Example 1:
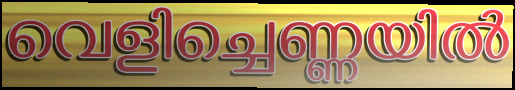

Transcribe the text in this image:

വെളിച്ചെണ്ണയിൽ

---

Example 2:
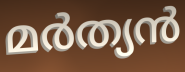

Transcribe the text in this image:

മർത്യൻ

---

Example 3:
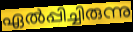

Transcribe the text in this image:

ഏൽപ്പിച്ചിരുന്നു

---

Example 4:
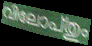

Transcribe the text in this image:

വിലോപ്തും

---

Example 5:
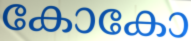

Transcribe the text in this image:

കോകോ